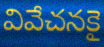
వివేచనకై